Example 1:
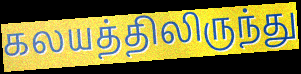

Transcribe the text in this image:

கலயத்திலிருந்து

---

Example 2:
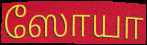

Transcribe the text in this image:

ஸோயா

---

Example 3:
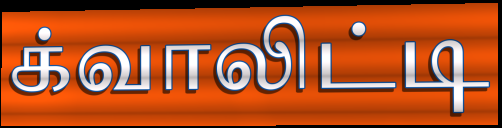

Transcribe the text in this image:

க்வாலிட்டி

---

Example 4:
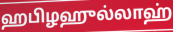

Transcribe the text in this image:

ஹபிழஹுல்லாஹ்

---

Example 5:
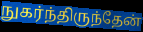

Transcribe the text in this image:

நுகர்ந்திருந்தேன்